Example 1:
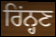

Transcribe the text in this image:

ਰਿਂਨ੍ਹਣ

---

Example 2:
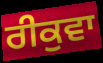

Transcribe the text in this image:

ਰੀਕੁਵਾ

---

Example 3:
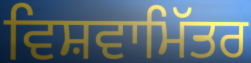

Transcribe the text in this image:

ਵਿਸ਼ਵਾਮਿੱਤਰ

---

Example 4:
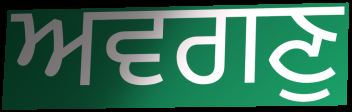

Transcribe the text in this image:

ਅਵਗਣੁ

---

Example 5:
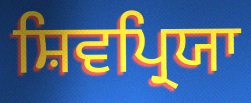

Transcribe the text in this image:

ਸ਼ਿਵਪ੍ਰਿਯਾ